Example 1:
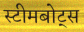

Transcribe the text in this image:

स्टीमबोट्स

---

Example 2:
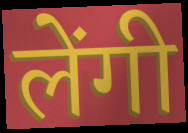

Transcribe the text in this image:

लेंगी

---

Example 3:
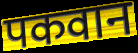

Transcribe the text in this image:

पकवान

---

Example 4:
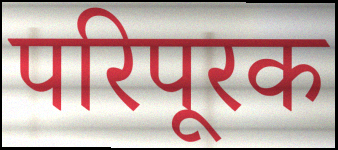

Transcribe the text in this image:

परिपूरक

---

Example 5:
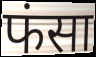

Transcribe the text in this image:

फंसा